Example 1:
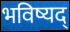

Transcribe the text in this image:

भविष्यद्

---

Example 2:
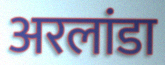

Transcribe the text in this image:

अरलांडा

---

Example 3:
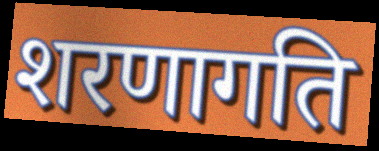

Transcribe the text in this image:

शरणागति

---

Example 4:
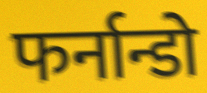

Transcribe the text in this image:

फर्नान्डो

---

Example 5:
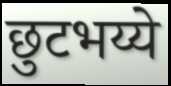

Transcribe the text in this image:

छुटभय्ये